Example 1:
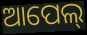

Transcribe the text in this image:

ଆପେଲ୍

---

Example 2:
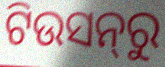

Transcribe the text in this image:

ଟିଉସନ୍‌ରୁ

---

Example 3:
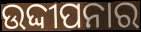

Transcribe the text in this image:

ଉଦ୍ଦୀପନାର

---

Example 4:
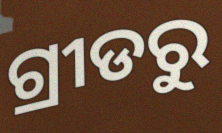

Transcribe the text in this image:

ଗ୍ରୀଡରୁ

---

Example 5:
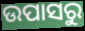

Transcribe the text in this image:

ଉପାସରୁ